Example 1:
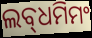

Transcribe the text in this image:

ଲବ୍‌ଧମିମଂ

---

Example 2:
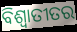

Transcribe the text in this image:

ବିଶ୍ଵାତୀତର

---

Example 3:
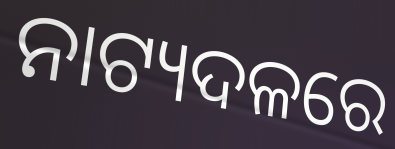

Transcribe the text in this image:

ନାଟ୍ୟଦଳରେ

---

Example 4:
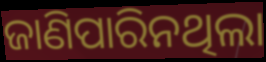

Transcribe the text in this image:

ଜାଣିପାରିନଥିଲା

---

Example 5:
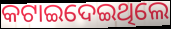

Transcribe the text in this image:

କଟାଇଦେଇଥିଲେ